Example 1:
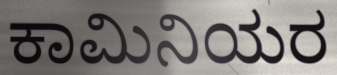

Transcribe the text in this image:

ಕಾಮಿನಿಯರ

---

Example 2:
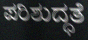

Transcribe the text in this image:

ಪರಿಶುದ್ಧತೆ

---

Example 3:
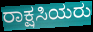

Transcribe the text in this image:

ರಾಕ್ಷಸಿಯರು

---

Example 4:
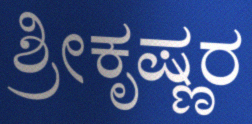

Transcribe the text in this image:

ಶ್ರೀಕೃಷ್ಣರ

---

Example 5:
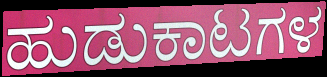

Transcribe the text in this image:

ಹುಡುಕಾಟಗಳ